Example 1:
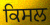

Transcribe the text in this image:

ਕਿਸਲ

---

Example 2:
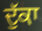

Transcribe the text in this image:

ਦੁੱਕਾ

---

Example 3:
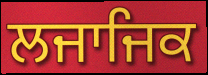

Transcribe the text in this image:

ਲਜਾਜਿਕ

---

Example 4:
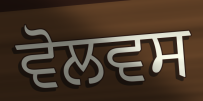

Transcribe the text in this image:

ਵੋਲਵਸ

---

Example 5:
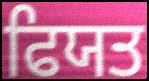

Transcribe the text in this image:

ਫਿਯਤ